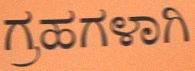
ಗ್ರಹಗಳಾಗಿ